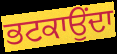
ਭਟਕਾਉਂਦਾ